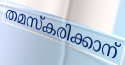
തമസ്കരിക്കാന്